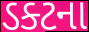
ડક્ટના